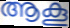
ആകൂ